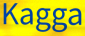
Kagga